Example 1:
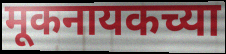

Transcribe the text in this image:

मूकनायकच्या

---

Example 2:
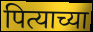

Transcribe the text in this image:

पित्याच्या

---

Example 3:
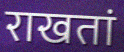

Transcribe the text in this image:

राखतां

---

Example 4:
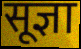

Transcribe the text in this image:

सूज्ञा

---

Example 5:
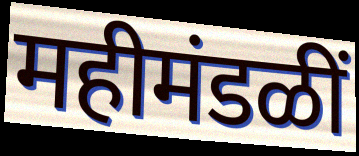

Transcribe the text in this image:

महीमंडळीं